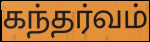
கந்தர்வம்